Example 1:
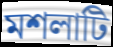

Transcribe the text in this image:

মশলাটি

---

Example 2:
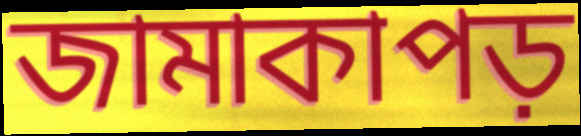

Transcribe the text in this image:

জামাকাপড়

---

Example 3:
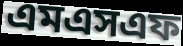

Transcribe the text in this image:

এমএসএফ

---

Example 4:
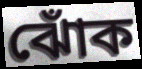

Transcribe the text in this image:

ঝোঁক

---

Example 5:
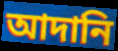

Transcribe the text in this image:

আদানি